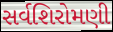
સર્વશિરોમણી